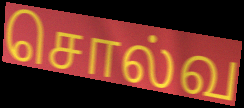
சொல்வ